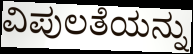
ವಿಪುಲತೆಯನ್ನು